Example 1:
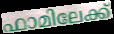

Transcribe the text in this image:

ഫാമിലേക്ക്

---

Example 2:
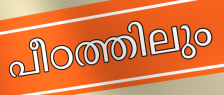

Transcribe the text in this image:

പീഠത്തിലും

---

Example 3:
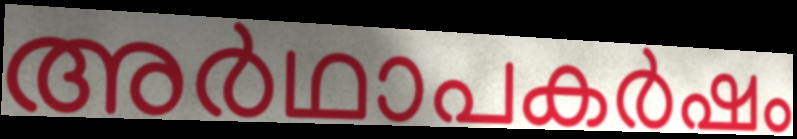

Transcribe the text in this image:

അർഥാപകർഷം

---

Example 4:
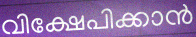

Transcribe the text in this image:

വിക്ഷേപിക്കാൻ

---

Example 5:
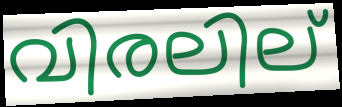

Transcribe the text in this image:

വിരലില്